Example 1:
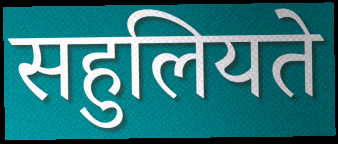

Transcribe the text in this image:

सहुलियते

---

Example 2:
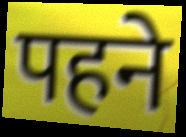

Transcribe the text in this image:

पहने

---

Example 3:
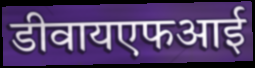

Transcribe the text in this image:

डीवायएफआई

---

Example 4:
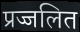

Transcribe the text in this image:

प्रज्जलित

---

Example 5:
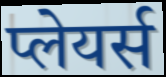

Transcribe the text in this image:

प्‍लेयर्स